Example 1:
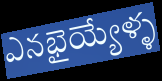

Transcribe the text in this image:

ఎనభైయ్యేళ్ళ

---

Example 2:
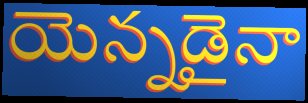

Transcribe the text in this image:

యెన్నడైనా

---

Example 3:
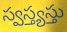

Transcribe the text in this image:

స్వస్త్యస్తు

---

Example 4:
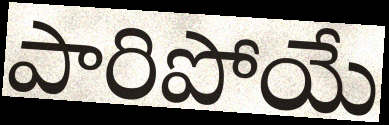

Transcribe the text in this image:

పారిపోయే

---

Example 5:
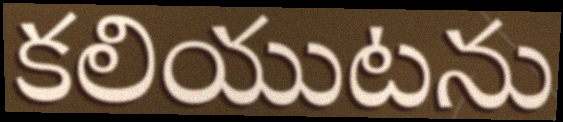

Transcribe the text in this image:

కలియుటను